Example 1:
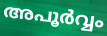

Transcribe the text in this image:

അപൂർവ്വം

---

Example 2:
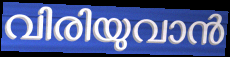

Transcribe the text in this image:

വിരിയുവാൻ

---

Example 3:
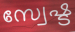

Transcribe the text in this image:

സ്വേഷ്ട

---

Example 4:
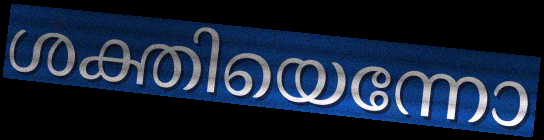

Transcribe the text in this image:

ശക്തിയെന്നോ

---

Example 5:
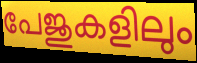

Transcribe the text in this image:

പേജുകളിലും